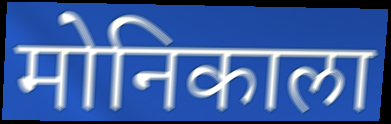
मोनिकाला